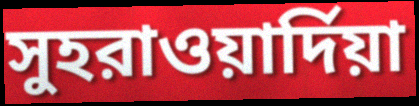
সুহরাওয়ার্দিয়া